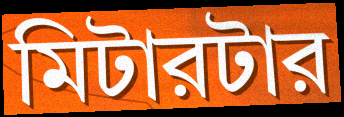
মিটারটার